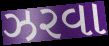
ઝરવા